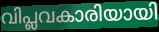
വിപ്ലവകാരിയായി